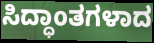
ಸಿದ್ಧಾಂತಗಳಾದ